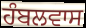
ਹੰਬਲਵਾਸ